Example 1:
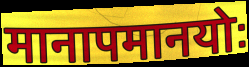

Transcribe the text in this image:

मानापमानयोः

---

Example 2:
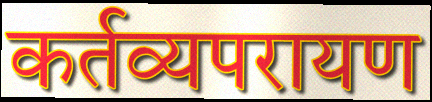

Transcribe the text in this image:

कर्तव्यपरायण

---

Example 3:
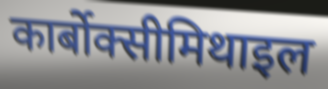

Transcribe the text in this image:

कार्बोक्सीमिथाइल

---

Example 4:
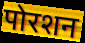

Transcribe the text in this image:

पोरशन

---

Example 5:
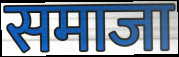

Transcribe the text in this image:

समाजा